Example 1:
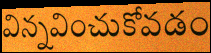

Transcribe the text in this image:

విన్నవించుకోవడం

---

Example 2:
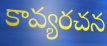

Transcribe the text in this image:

కావ్యరచన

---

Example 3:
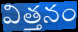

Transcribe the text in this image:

విత్తనం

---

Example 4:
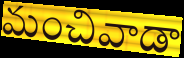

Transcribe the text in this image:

మంచివాడా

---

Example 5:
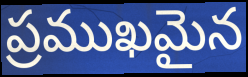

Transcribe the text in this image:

ప్రముఖమైన